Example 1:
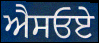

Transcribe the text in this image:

ਐਸਓਏ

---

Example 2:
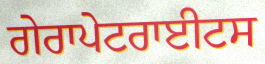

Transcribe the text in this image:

ਗੇਰਾਪੇਟਰਾਈਟਸ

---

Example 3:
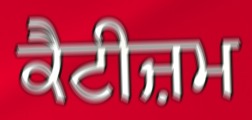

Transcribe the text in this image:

ਕੈਟੀਜ਼ਮ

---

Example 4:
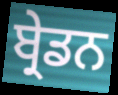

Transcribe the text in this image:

ਬ੍ਰੇਡਨ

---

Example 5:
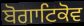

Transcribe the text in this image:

ਬੋਗਾਟਿਕੋਵ